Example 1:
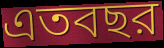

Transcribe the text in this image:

এতবছর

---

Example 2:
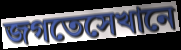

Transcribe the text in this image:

জগতেসেখানে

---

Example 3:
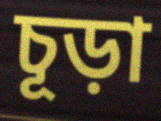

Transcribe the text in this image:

চূড়া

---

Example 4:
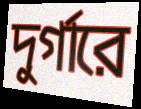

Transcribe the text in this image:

দুর্গারে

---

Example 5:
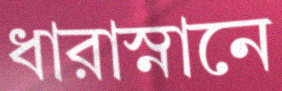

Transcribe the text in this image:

ধারাস্নানে